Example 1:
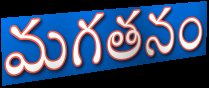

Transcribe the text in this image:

మగతనం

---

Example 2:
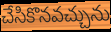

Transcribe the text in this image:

చేసికొనవచ్చును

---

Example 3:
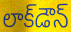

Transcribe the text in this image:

లాక్‌డౌన్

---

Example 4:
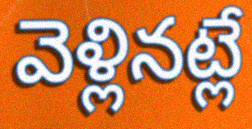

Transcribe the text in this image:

వెళ్లినట్లే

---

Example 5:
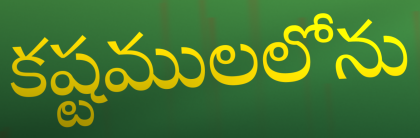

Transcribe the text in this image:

కష్టములలోను